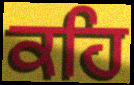
ਕਹਿ